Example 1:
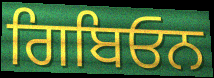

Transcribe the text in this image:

ਗਿਬਿਓਨ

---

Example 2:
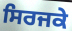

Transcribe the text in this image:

ਸਿਰਜਕੇ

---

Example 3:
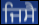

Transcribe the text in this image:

ਜਿਸੈ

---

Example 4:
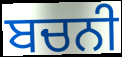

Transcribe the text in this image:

ਬਚਨੀ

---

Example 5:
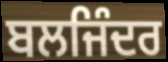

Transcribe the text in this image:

ਬਲਜਿੰਦਰ